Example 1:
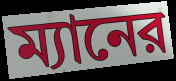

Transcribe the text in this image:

ম্যানের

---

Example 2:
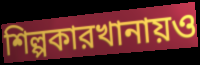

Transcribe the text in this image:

শিল্পকারখানায়ও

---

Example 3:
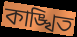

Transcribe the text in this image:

কাঙ্খিত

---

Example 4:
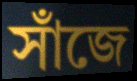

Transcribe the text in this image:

সাঁজে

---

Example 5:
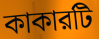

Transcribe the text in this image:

কাকারটি